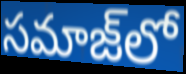
సమాజ్‌లో